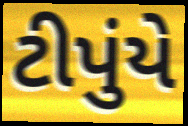
ટીપુંયે